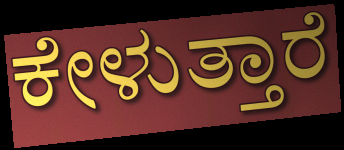
ಕೇಳುತ್ತಾರೆ